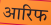
आरिफ